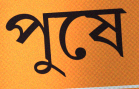
পুষে